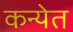
कन्येत